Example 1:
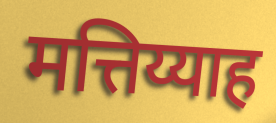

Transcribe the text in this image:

मत्तिय्याह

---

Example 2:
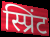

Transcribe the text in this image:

स्प्रिंट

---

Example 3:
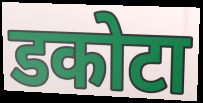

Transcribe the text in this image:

डकोटा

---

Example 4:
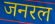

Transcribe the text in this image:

जनरल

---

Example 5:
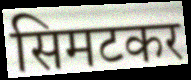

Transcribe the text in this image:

सिमटकर